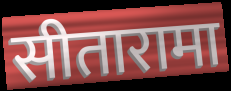
सीतारामा